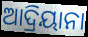
ଆଦ୍ରିୟାନା